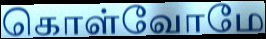
கொள்வோமே